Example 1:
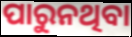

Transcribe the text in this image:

ପାରୁନଥିବା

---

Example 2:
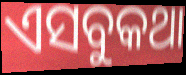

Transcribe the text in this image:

ଏସବୁକଥା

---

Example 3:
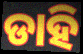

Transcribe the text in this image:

ଡାହି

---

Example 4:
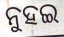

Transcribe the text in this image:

ନୁହଇ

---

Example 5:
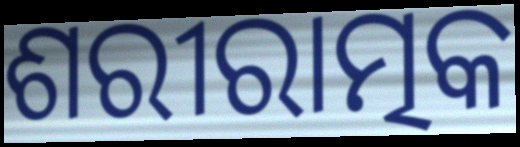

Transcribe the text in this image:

ଶରୀରାତ୍ମକ